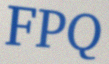
FPQ